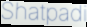
Shatpadi